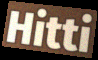
Hitti